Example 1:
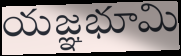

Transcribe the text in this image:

యజ్ఞభూమి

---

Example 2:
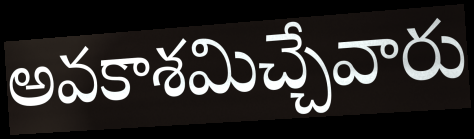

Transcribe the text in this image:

అవకాశమిచ్చేవారు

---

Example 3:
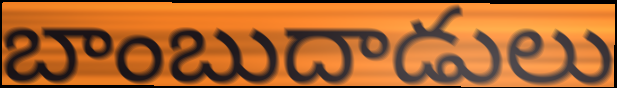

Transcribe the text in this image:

బాంబుదాడులు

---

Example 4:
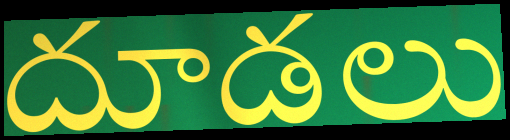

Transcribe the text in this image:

దూడలు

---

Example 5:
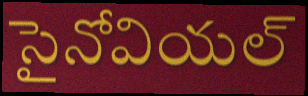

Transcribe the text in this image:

సైనోవియల్